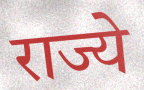
राज्ये